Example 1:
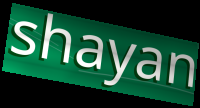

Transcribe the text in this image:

shayan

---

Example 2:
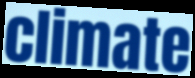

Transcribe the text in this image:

climate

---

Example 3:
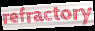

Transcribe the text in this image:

refractory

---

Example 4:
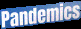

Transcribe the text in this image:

Pandemics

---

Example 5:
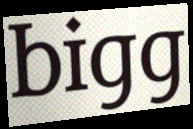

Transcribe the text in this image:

bigg